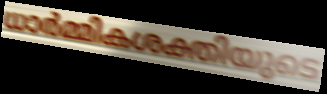
ധാർമ്മികശക്തിയുടെ